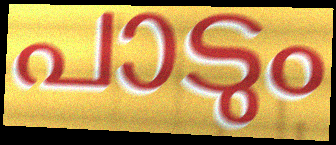
പാടും